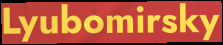
Lyubomirsky